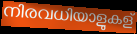
നിരവധിയാളുകള്